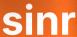
sinr